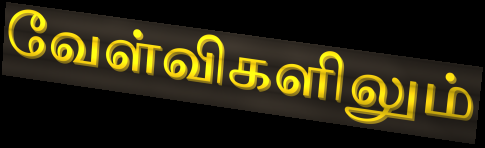
வேள்விகளிலும்